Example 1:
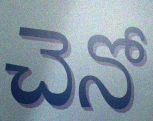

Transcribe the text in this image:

చెనో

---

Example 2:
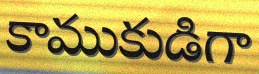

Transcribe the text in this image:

కాముకుడిగా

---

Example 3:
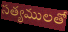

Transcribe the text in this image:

సత్యములతో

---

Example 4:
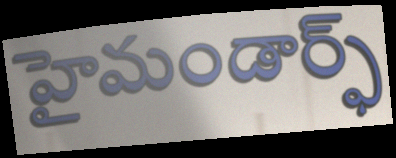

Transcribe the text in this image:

హైమండార్ఫ్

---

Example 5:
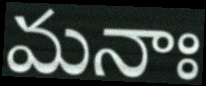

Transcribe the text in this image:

మనాః